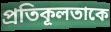
প্রতিকূলতাকে